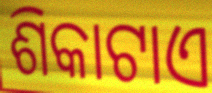
ଶିକାଟାଏ